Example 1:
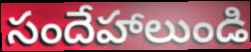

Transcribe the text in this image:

సందేహాలుండి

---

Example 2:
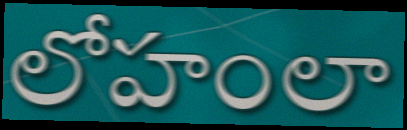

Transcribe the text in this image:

లోహంలా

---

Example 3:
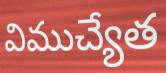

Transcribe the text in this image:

విముచ్యేత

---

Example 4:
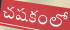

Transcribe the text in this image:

చషకంలో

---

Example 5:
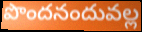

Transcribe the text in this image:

పొందనందువల్ల